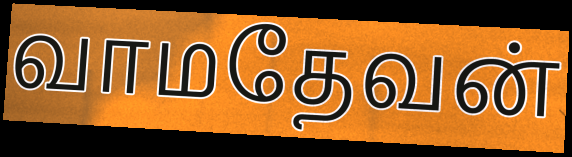
வாமதேவன்